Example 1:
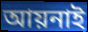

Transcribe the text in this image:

আয়নাই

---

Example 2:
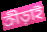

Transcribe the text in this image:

ক্রীড়াই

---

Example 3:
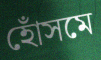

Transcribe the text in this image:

হোঁসমে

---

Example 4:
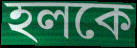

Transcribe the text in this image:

হলকে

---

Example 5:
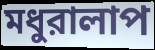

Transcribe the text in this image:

মধুরালাপ